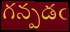
గన్పడఁ